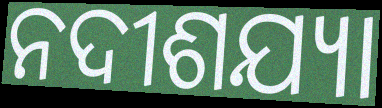
ନଦୀଶଯ୍ୟା